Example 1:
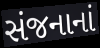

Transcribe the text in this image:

સંજનાનાં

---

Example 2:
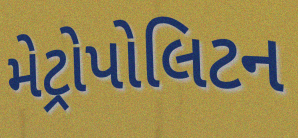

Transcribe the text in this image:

મેટ્રોપોલિટન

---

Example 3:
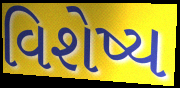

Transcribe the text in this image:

વિશેષ્ય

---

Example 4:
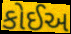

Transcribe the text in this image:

કોઈઅ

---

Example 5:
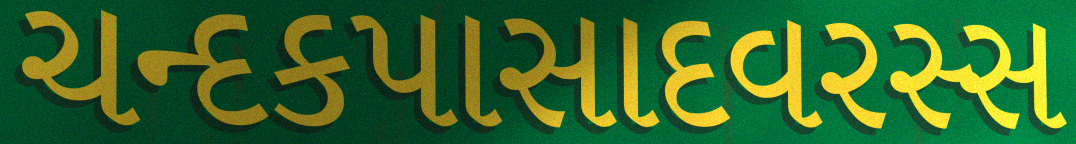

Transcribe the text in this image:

ચન્દકપાસાદવરસ્સ